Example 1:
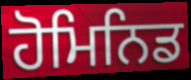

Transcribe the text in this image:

ਹੋਮਿਨਿਡ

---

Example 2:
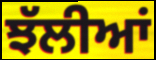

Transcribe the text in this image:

ਝੱਲੀਆਂ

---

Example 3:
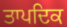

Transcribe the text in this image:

ਤਾਪਦਿਕ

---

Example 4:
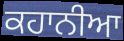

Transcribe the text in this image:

ਕਹਾਨੀਆ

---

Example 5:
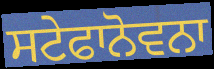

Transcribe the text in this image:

ਸਟੇਫਾਨੋਵਨਾ